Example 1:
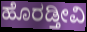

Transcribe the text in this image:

ಹೊರಡ್ತೀವಿ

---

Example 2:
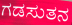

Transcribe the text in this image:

ಗಡಸುತನ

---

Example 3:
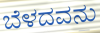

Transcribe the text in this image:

ಬೆಳದವನು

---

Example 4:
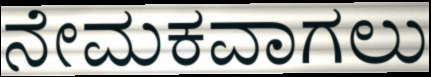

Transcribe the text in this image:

ನೇಮಕವಾಗಲು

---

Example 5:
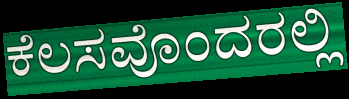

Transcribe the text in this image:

ಕೆಲಸವೊಂದರಲ್ಲಿ